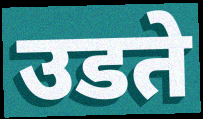
उडते